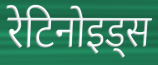
रेटिनोइड्स